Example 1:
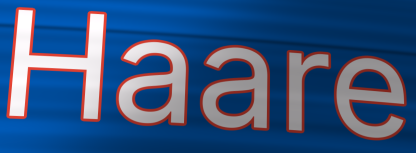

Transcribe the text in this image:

Haare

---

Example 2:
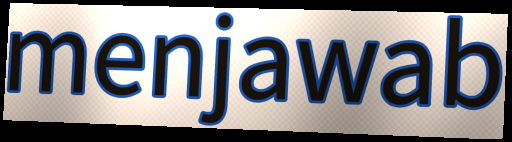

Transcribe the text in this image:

menjawab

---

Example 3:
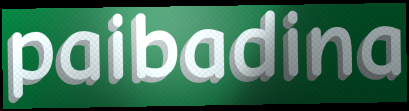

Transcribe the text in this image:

paibadina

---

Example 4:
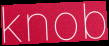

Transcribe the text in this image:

knob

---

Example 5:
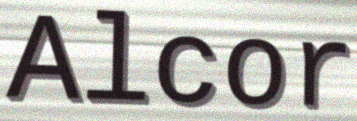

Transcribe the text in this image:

Alcor